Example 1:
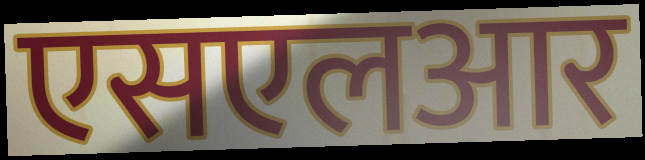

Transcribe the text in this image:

एसएलआर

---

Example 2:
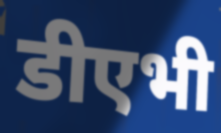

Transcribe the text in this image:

डीएभी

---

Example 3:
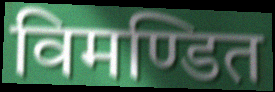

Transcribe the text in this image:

विमण्डित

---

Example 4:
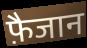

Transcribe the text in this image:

फ़ैजान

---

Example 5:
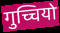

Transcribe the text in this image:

गुच्चियो